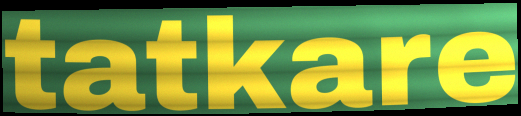
tatkare